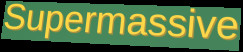
Supermassive